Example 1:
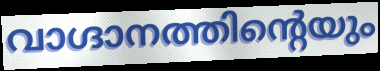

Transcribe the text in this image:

വാഗ്ദാനത്തിന്റെയും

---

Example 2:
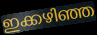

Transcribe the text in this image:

ഇക്കഴിഞ്ഞ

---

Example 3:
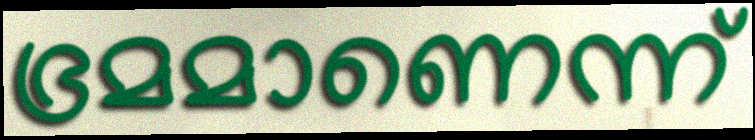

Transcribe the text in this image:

ഭ്രമമാണെന്ന്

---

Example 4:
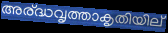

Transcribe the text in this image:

അര്ദ്ധവൃത്താകൃതിയില്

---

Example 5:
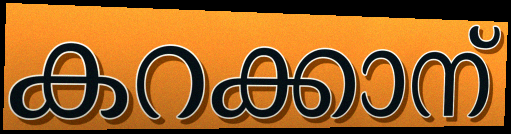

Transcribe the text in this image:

കറക്കാന്